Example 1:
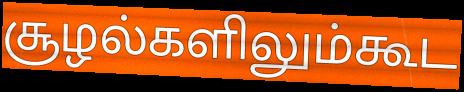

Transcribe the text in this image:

சூழல்களிலும்கூட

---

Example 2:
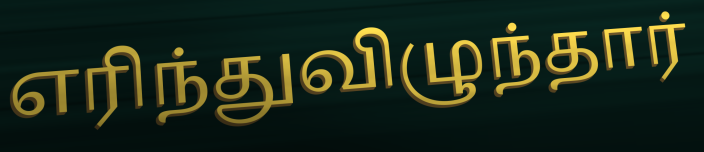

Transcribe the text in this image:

எரிந்துவிழுந்தார்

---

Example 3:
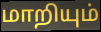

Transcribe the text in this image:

மாறியும்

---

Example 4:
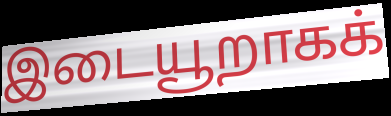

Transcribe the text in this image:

இடையூறாகக்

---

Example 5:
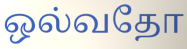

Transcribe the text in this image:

ஒல்வதோ